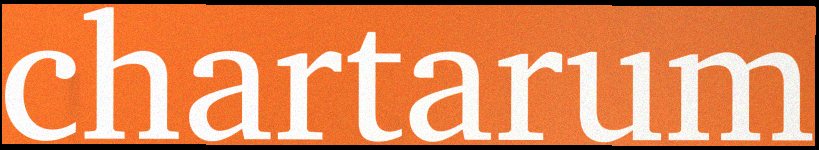
chartarum